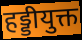
हड्डीयुक्त